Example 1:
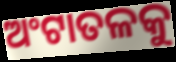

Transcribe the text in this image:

ଅଂଟାତଳକୁ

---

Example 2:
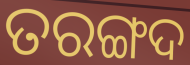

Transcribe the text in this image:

ତରଙ୍ଗଦ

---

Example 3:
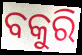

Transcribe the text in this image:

ବକୁରି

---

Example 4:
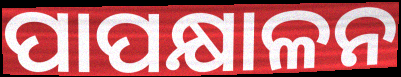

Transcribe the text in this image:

ପାପକ୍ଷାଳନ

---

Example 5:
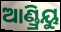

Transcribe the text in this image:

ଆଣ୍ଡ୍ରିୟୁ